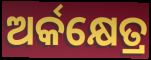
ଅର୍କକ୍ଷେତ୍ର